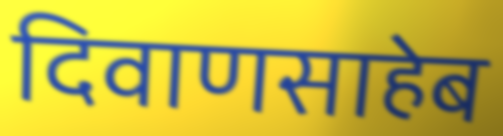
दिवाणसाहेब